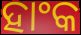
ହାଂକ